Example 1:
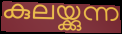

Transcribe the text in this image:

കുലയ്ക്കുന്ന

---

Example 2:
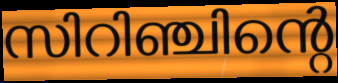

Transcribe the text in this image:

സിറിഞ്ചിന്റെ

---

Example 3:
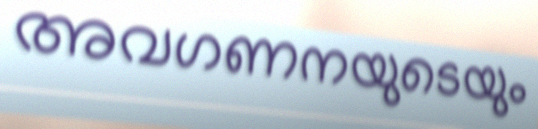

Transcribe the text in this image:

അവഗണനയുടെയും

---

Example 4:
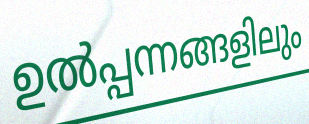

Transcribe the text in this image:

ഉൽപ്പന്നങ്ങളിലും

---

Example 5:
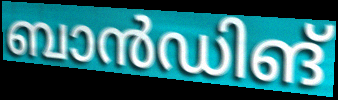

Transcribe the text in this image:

ബാൻഡിങ്